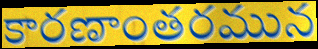
కారణాంతరమున